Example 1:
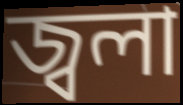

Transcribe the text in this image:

জ্বলা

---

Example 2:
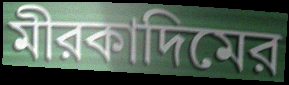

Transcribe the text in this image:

মীরকাদিমের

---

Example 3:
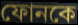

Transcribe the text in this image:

ফোনকে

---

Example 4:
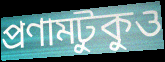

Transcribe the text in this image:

প্রণামটুকুও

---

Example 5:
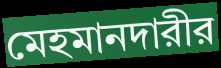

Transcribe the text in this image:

মেহমানদারীর